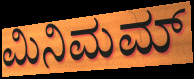
ಮಿನಿಮಮ್